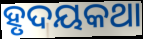
ହୃଦୟକଥା